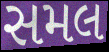
સમલ